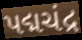
પદ્મચંદ્ર